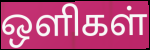
ஒளிகள்